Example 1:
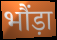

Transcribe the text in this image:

भौंड़ा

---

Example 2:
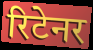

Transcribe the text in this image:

रिटेनर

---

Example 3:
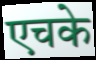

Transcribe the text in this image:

एचके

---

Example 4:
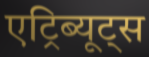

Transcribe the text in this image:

एट्रिब्यूट्स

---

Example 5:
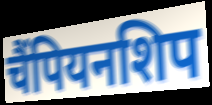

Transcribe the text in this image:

चैंपियनशिप